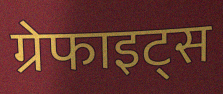
ग्रेफाइट्स